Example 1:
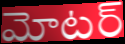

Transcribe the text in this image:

మోటర్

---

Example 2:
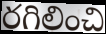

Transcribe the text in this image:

రగిలించి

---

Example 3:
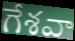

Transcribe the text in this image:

గేశవా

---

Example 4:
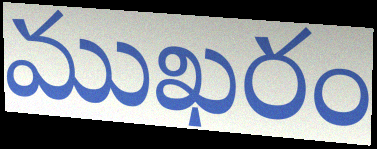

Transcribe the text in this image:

ముఖరం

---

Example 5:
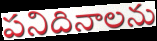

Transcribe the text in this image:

పనిదినాలను